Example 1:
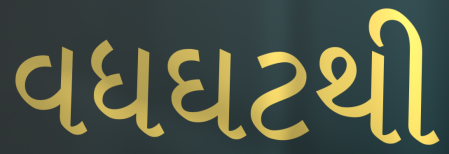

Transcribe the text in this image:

વધઘટથી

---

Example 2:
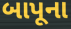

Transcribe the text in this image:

બાપૂના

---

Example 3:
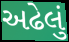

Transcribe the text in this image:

અઢેલું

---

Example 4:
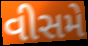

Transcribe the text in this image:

વીસમે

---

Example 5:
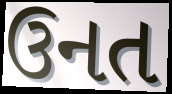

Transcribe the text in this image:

ઉનત